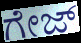
ಗೇಜ್